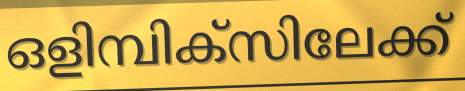
ഒളിമ്പിക്സിലേക്ക്